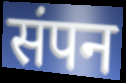
संपन